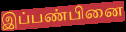
இப்பண்பினை